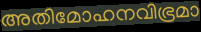
അതിമോഹനവിഭ്രമാ